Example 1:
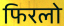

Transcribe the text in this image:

फिरलो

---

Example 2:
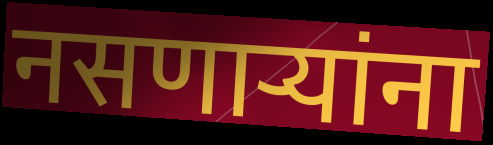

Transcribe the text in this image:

नसणाऱ्यांना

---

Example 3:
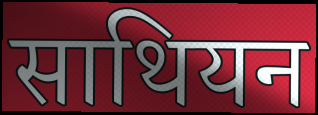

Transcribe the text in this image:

साथियन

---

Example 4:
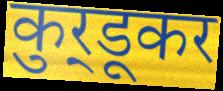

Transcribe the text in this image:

कुर्डूकर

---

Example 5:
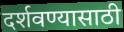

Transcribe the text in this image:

दर्शवण्यासाठी